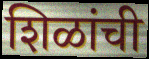
शिळांची